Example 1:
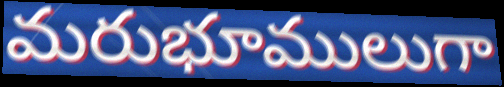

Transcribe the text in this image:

మరుభూములుగా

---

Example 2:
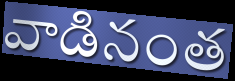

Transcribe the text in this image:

వాడినంత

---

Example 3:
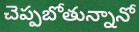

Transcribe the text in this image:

చెప్పబోతున్నానో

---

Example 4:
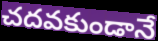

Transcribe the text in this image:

చదవకుండానే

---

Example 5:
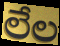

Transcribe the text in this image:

లేల